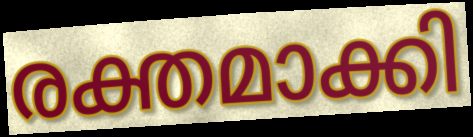
രക്തമാക്കി